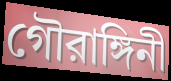
গৌরাঙ্গিনী